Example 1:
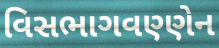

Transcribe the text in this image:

વિસભાગવણ્ણેન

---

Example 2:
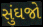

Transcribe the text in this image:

સુંઘજો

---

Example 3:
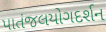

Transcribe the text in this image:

પાતંજલયોગદર્શન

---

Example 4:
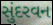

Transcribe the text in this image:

સુંદરવન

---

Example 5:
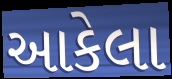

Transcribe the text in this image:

આકેલા